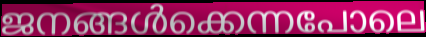
ജനങ്ങൾക്കെന്നപോലെ